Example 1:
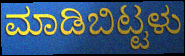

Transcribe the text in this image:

ಮಾಡಿಬಿಟ್ಟಳು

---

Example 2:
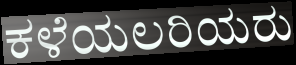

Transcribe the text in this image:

ಕಳೆಯಲರಿಯರು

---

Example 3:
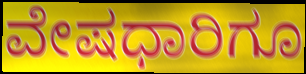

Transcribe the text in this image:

ವೇಷಧಾರಿಗೂ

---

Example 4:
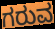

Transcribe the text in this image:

ಗರುವ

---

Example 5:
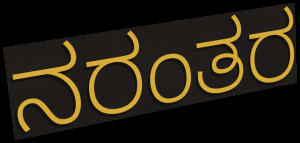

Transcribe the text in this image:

ನರಂತರ